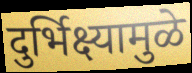
दुर्भिक्ष्यामुळे